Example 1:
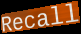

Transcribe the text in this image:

Recall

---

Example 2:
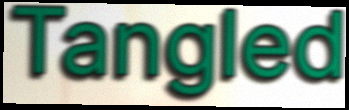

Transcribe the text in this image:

Tangled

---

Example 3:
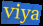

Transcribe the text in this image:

viya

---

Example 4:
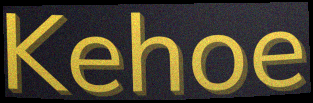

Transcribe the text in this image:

Kehoe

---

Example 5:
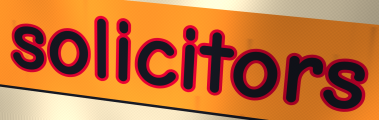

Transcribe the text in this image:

solicitors